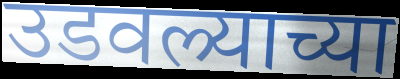
उडवल्याच्या